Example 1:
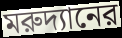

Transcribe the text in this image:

মরুদ্যানের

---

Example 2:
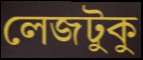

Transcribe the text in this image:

লেজটুকু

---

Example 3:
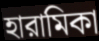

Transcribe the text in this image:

হারামিকা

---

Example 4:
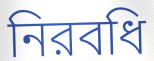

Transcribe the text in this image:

নিরবধি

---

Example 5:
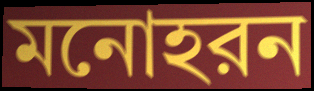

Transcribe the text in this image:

মনোহরন